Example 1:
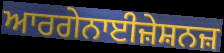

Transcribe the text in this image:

ਆਰਗੇਨਾਈਜ਼ੇਸ਼ਨਜ਼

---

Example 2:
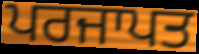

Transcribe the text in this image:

ਪਰਜਾਪਤ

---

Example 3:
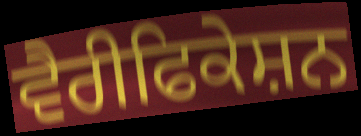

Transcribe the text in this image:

ਵੈਰੀਫਿਕੇਸ਼ਨ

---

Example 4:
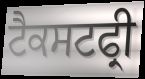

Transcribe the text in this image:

ਟੈਕਸਟਫ੍ਰੀ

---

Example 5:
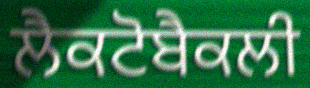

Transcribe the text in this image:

ਲੈਕਟੋਬੈਕਲੀ